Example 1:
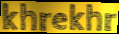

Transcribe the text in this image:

khrekhr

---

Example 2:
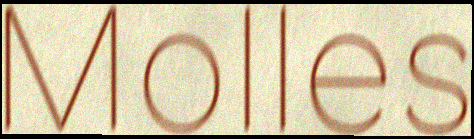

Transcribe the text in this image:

Molles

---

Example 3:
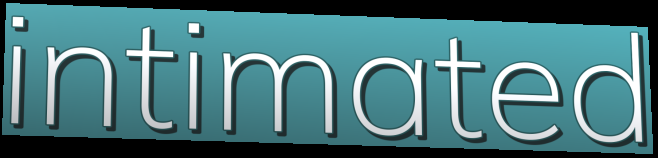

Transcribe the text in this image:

intimated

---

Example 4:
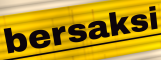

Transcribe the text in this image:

bersaksi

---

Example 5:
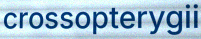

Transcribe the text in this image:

crossopterygii